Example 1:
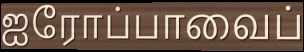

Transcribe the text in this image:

ஐரோப்பாவைப்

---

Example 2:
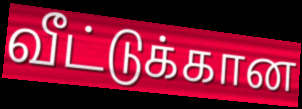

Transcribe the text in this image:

வீட்டுக்கான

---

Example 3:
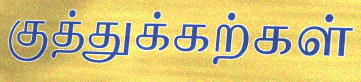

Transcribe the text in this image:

குத்துக்கற்கள்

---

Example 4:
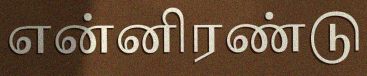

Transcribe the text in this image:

என்னிரண்டு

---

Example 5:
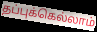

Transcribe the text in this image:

தப்புக்கெல்லாம்